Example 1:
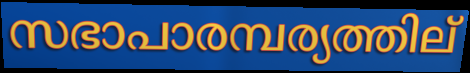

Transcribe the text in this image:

സഭാപാരമ്പര്യത്തില്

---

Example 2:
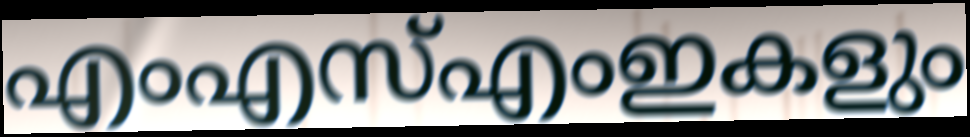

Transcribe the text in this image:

എംഎസ്എംഇകളും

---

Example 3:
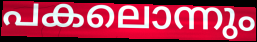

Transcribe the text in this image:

പകലൊന്നും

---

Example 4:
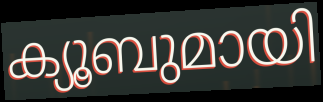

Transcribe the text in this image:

ക്യൂബുമായി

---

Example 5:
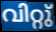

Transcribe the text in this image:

വിറ്റു്